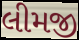
લીમજી